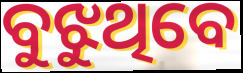
ବୁଝୁଥିବେ